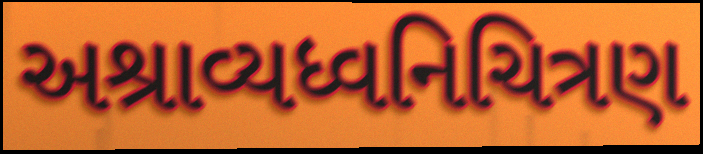
અશ્રાવ્યધ્વનિચિત્રણ